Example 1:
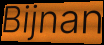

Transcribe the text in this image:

Bijnan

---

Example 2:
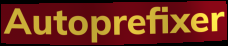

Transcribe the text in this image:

Autoprefixer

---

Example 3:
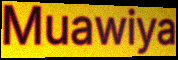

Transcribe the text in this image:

Muawiya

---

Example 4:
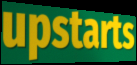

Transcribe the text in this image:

upstarts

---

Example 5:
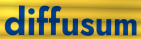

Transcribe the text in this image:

diffusum